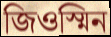
জিওস্মিন